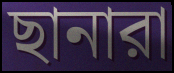
ছানারা